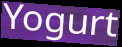
Yogurt